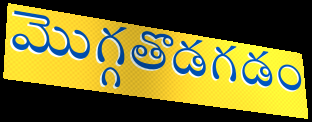
మొగ్గతొడగడం